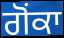
ਗੋਂਕਾ